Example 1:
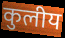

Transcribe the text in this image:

कुलीय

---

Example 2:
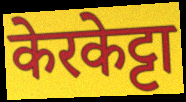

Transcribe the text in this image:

केरकेट्टा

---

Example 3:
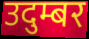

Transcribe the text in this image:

उदुम्बर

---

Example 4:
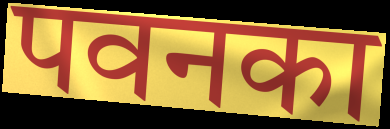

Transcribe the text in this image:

पवनका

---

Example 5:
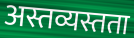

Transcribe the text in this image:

अस्तव्यस्तता